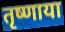
तृष्णाया